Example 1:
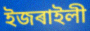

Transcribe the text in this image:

ইজৰাইলী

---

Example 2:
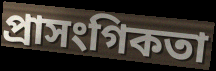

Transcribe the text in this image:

প্ৰাসংগিকতা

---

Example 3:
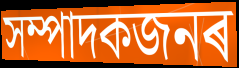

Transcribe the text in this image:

সম্পাদকজনৰ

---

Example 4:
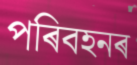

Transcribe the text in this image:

পৰিবহনৰ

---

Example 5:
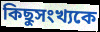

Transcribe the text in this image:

কিছুসংখ্যকে